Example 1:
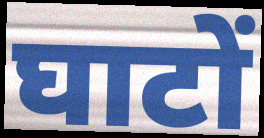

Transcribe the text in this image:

घाटों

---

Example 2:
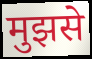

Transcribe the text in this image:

मुझसे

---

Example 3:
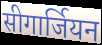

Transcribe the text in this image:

सीगार्जियन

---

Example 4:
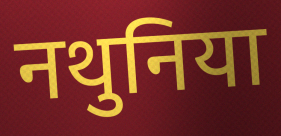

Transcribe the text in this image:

नथुनिया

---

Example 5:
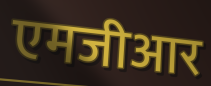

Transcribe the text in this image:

एमजीआर